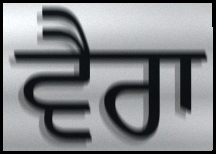
ਵੈਰਾ